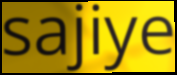
sajiye